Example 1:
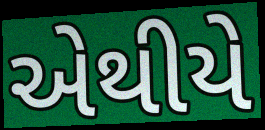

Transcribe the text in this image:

એથીયે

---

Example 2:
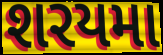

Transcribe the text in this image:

શરયમા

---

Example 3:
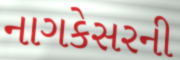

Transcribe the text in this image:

નાગકેસરની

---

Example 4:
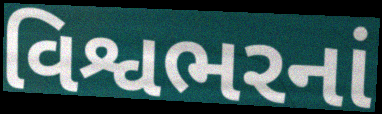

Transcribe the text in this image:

વિશ્વભરનાં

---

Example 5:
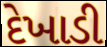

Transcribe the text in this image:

દેખાડી